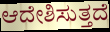
ಆದೇಶಿಸುತ್ತದೆ